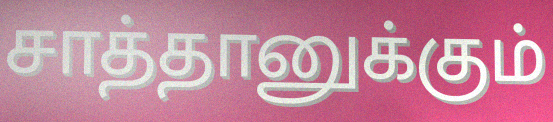
சாத்தானுக்கும்